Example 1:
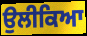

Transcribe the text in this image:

ਉਲੀਕਿਆ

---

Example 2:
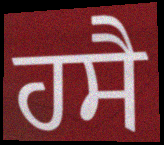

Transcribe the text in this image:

ਹਸੈ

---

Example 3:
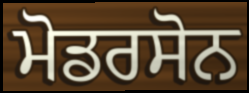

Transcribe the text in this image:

ਮੋਡਰਸੋਨ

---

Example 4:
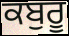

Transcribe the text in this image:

ਕਬੁਰੂ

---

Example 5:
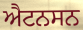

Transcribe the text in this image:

ਐਟਨਸਨ